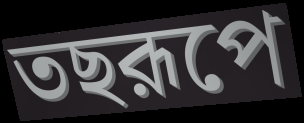
তছরূপে